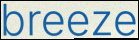
breeze